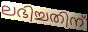
ലഭിച്ചതിന്